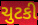
ચુટકી